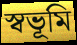
স্বভূমি